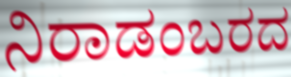
ನಿರಾಡಂಬರದ